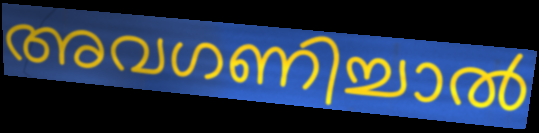
അവഗണിച്ചാൽ